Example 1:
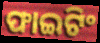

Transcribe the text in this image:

ଫାଇଟିଂ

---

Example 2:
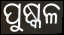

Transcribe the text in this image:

ପୁଷ୍କଳ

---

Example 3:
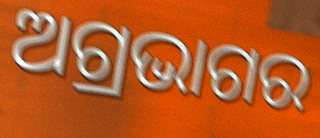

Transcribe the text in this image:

ଅଗ୍ରଭାଗର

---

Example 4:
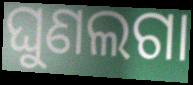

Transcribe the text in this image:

ଘୁଣଲଗା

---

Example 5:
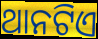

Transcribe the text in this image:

ଥାନଟିଏ